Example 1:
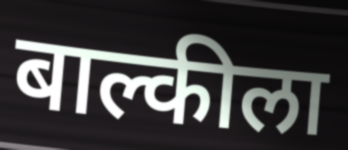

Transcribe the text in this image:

बाल्कीला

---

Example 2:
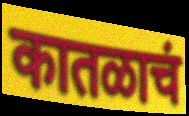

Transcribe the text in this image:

कातळाचं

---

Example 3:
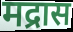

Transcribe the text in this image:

मद्रास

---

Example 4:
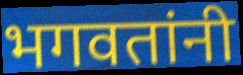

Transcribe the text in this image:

भगवतांनी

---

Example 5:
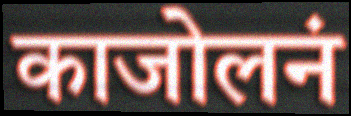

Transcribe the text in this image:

काजोलनं